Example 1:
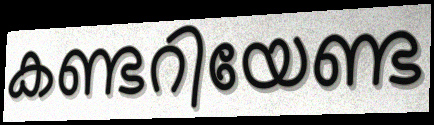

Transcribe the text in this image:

കണ്ടറിയേണ്ട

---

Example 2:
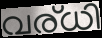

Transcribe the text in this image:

വര്ധി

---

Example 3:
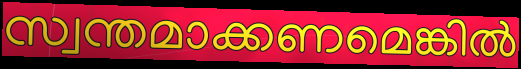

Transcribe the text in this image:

സ്വന്തമാക്കണമെങ്കിൽ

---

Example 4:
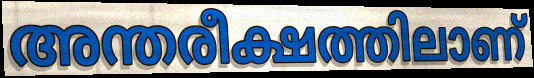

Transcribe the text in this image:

അന്തരീക്ഷത്തിലാണ്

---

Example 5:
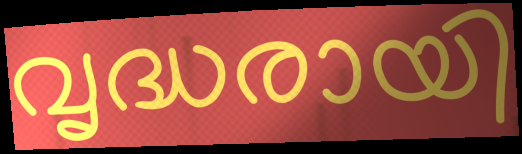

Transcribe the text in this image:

വൃദ്ധരായി